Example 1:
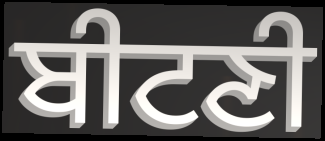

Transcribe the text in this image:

ਬੀਟਣੀ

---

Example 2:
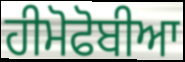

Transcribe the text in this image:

ਹੀਮੋਫੋਬੀਆ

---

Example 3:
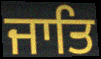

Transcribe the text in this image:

ਜਾਤਿ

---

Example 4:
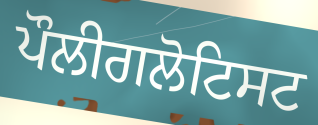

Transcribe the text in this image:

ਪੌਲੀਗਲੋਟਿਸਟ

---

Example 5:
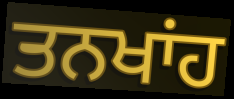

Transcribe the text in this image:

ਤਨਖਾਂਹ